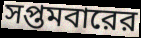
সপ্তমবারের